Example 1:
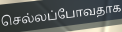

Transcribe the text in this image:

செல்லப்போவதாக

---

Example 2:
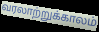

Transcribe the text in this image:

வரலாற்றுக்காலம்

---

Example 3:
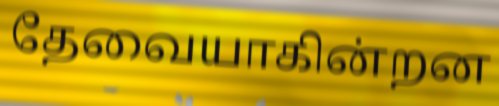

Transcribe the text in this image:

தேவையாகின்றன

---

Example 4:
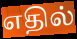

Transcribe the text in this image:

எதில்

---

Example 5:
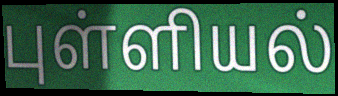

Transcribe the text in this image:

புள்ளியல்